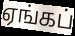
ஏங்கப்